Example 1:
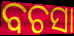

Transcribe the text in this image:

ବଚସା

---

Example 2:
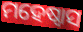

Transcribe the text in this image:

ମହେଷ୍ୱାସ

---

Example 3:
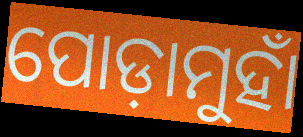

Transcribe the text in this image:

ପୋଡ଼ାମୁହାଁ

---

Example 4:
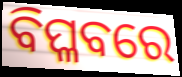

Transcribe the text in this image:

ବିପ୍ଳବରେ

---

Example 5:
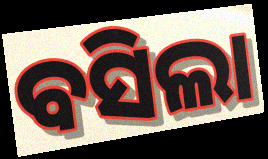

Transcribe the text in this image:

ବସିଲା